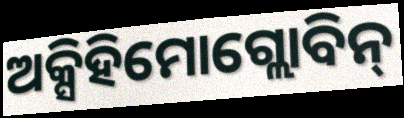
ଅକ୍ସିହିମୋଗ୍ଲୋବିନ୍